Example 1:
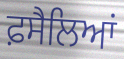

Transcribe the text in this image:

ਫ਼ਸੈਲਿਆਂ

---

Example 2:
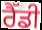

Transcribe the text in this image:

ਰੈੱਡੀ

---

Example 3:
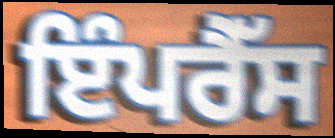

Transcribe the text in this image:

ਇੰਪਰੈੱਸ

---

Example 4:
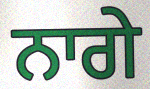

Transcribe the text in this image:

ਨਾਗੇ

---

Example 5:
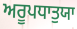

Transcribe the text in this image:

ਅਰੂਪਧਾਤੁਯਾ